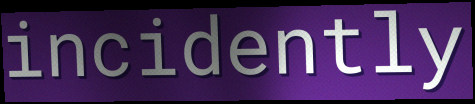
incidently